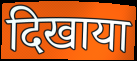
दिखाया